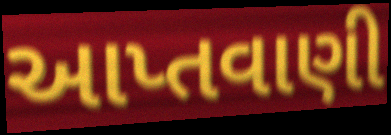
આપ્તવાણી